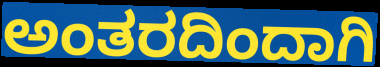
ಅಂತರದಿಂದಾಗಿ